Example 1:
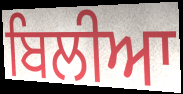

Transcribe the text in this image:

ਬਿਲੀਆ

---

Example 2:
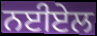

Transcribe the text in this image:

ਨਈਏਲ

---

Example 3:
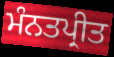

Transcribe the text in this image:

ਮੰਨਤਪ੍ਰੀਤ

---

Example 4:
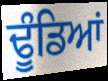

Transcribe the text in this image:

ਢੂੰਡਿਆਂ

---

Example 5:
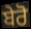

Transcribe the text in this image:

ਬੇਰੋ